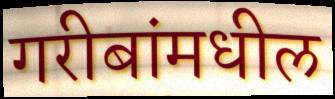
गरीबांमधील